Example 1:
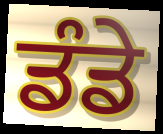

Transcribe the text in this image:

ਡੰਡੇ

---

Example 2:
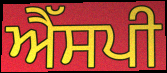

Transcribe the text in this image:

ਐੱਸਪੀ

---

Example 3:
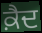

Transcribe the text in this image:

ਕ਼ੈਦ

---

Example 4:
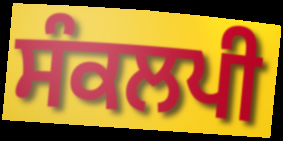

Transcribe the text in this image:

ਸੰਕਲਪੀ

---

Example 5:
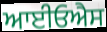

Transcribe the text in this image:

ਆਈਓਐਸ